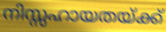
നിസ്സഹായതയ്ക്ക്